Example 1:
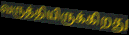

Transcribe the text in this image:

வருத்தியிருக்கிறது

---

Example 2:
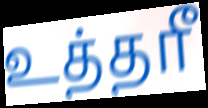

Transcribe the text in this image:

உத்தரீ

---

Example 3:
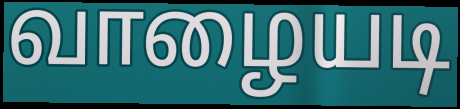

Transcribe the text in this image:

வாழையடி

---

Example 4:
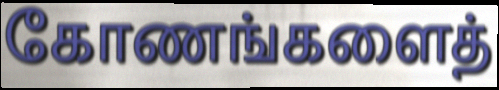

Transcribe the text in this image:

கோணங்களைத்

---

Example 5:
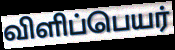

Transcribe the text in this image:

விளிப்பெயர்